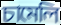
চামেলি